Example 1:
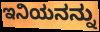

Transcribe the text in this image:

ಇನಿಯನನ್ನು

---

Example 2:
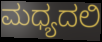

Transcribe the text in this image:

ಮಧ್ಯದಲಿ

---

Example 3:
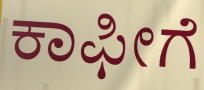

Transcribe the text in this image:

ಕಾಫೀಗೆ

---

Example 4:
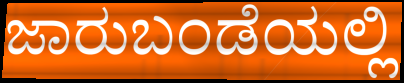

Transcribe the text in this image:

ಜಾರುಬಂಡೆಯಲ್ಲಿ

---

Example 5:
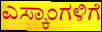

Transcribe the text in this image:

ಎಸ್ಕಾಂಗಳಿಗೆ